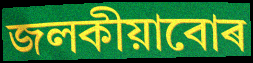
জলকীয়াবোৰ